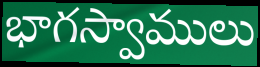
భాగస్వాములు